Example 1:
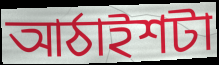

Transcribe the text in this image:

আঠাইশটা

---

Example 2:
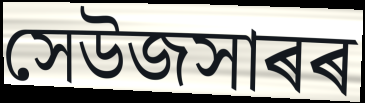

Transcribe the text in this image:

সেউজসাৰৰ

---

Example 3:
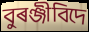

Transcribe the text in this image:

বুৰঞ্জীবিদে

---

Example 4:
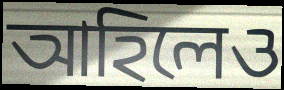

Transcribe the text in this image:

আহিলেও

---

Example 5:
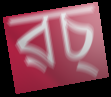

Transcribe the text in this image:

ৱচ্